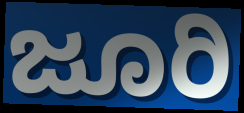
ಜೂರಿ